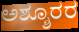
ಅಶ್ಶೂರರ